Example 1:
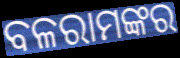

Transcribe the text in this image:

ବଳରାମଙ୍କର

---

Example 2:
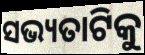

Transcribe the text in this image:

ସଭ୍ୟତାଟିକୁ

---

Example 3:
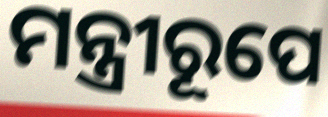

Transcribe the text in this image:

ମନ୍ତ୍ରୀରୂପେ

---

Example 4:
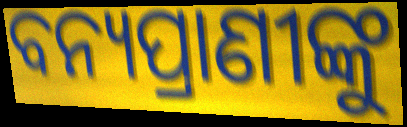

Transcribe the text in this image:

ବନ୍ୟପ୍ରାଣୀଙ୍କୁ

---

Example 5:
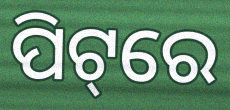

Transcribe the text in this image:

ପିଟ୍‌ରେ